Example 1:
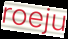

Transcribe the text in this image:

roeju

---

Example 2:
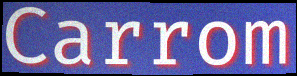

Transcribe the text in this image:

Carrom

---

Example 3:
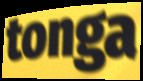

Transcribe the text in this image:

tonga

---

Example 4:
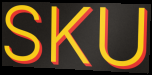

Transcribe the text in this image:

SKU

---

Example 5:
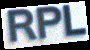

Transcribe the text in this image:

RPL